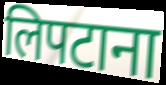
लिपटाना